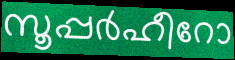
സൂപ്പർഹീറോ